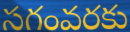
సగంవరకు